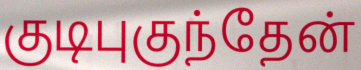
குடிபுகுந்தேன்